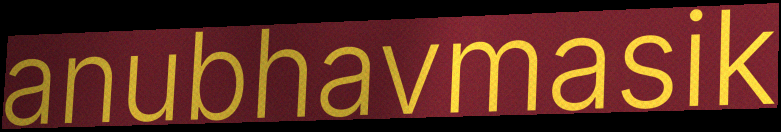
anubhavmasik